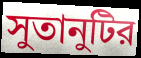
সুতানুটির